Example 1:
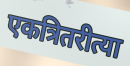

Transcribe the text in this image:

एकत्रितरीत्या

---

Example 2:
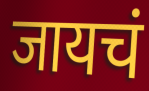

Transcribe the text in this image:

जायचं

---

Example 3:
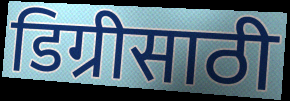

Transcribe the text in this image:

डिग्रीसाठी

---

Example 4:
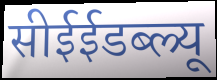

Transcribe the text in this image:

सीईईडब्ल्यू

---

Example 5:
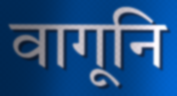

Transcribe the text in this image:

वागूनि